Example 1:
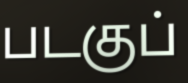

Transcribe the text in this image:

படகுப்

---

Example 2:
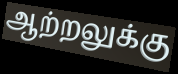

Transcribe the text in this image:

ஆற்றலுக்கு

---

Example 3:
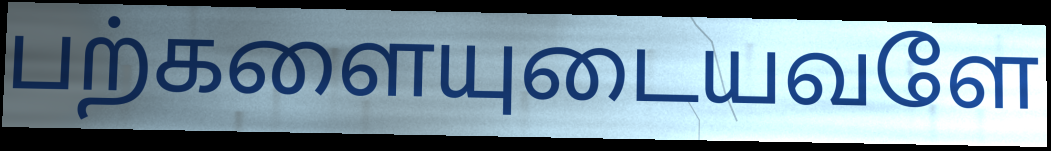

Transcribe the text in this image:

பற்களையுடையவளே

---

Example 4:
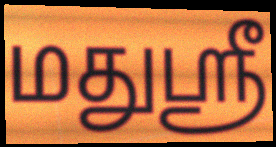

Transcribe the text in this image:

மதுஸ்ரீ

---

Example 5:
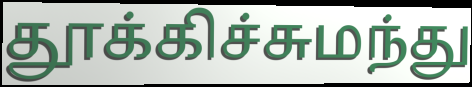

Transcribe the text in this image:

தூக்கிச்சுமந்து